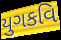
યુગકવિ